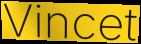
Vincet